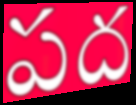
పద